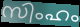
സിംഹം